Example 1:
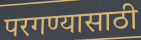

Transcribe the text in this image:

परगण्यासाठी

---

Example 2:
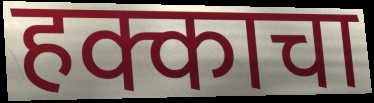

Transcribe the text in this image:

हक्काचा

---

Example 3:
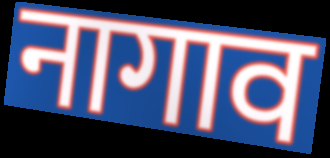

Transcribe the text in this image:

नागाव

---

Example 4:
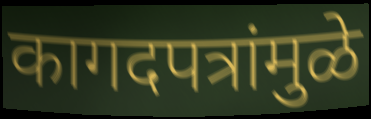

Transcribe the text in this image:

कागदपत्रांमुळे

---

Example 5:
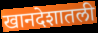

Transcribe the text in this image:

खानदेशातली